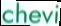
chevi